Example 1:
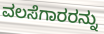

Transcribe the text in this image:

ವಲಸೆಗಾರರನ್ನು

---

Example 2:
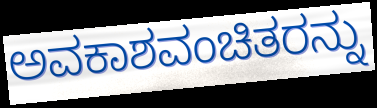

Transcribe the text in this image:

ಅವಕಾಶವಂಚಿತರನ್ನು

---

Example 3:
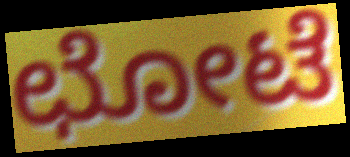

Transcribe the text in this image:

ಛೋಟೆ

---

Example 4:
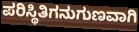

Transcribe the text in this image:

ಪರಿಸ್ಥಿತಿಗನುಗುಣವಾಗಿ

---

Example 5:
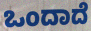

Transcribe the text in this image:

ಒಂದಾದೆ